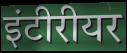
इंटीरीयर